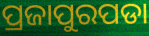
ପ୍ରଜାପୁରପଡା